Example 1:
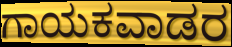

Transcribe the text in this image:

ಗಾಯಕವಾಡರ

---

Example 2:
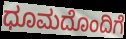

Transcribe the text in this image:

ಧೂಮದೊಂದಿಗೆ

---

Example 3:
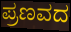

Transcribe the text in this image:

ಪ್ರಣವದ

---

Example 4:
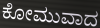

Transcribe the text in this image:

ಕೋಮುವಾದ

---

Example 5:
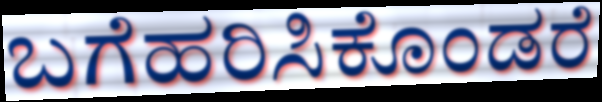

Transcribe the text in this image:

ಬಗೆಹರಿಸಿಕೊಂಡರೆ